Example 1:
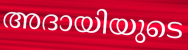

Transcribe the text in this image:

അദായിയുടെ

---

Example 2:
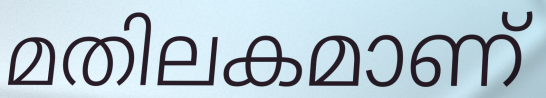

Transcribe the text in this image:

മതിലകമാണ്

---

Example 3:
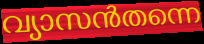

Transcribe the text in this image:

വ്യാസൻതന്നെ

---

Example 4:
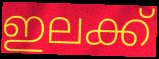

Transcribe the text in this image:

ഇലക്ക്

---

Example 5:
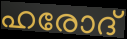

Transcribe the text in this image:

ഹരോദ്